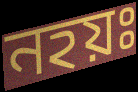
নহয়ঃ